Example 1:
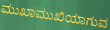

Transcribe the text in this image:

ಮುಖಾಮುಖಿಯಾಗುವ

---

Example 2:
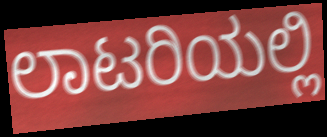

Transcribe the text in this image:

ಲಾಟರಿಯಲ್ಲಿ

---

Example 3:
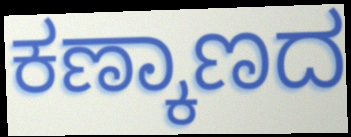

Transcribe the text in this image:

ಕಣ್ಕಾಣದ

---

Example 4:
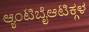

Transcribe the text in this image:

ಆ್ಯಂಟಿಬೈಆಟಿಕ್ಗಳ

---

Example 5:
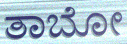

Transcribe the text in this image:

ತಾಬೋ